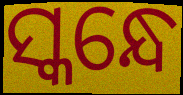
ସ୍କନ୍ଧେ